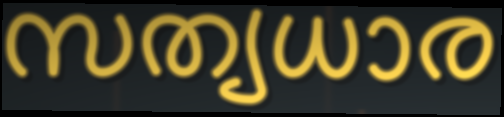
സത്യധാര